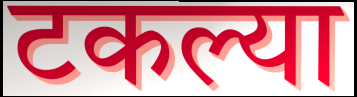
टकल्या